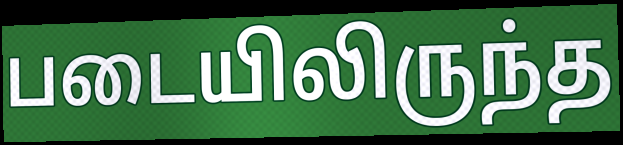
படையிலிருந்த